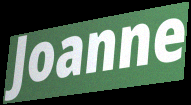
Joanne